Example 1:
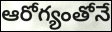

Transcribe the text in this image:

ఆరోగ్యంతోనే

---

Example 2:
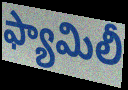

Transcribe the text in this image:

ఫ్యామిలీ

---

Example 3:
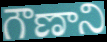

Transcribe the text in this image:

గౌణాని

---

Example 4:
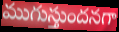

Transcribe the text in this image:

ముగుస్తుందనగా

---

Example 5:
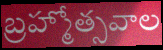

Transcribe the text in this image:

బ్రహ్మోత్సవాల